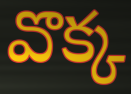
వొక్క